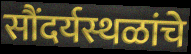
सौंदर्यस्थळांचे